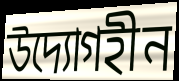
উদ্যোগহীন